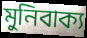
মুনিবাক্য